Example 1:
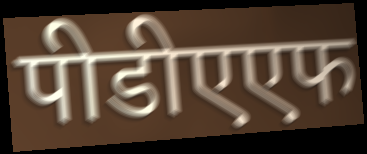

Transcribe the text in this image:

पीडीएएफ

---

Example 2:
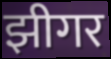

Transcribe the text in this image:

झीगर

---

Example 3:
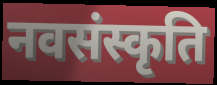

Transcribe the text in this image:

नवसंस्कृति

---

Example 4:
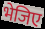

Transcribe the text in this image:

भेजिए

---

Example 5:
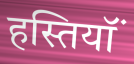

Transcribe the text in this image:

हस्तियॉं